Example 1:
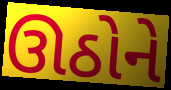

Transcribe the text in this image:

ઊઠોને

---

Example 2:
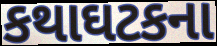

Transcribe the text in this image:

કથાઘટકના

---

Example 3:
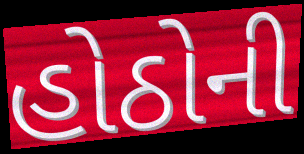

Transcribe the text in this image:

હોઠોની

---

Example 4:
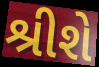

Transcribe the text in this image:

શ્રીશે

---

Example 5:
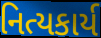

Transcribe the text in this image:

નિત્યકાર્ય